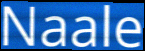
Naale